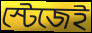
স্টেজেই